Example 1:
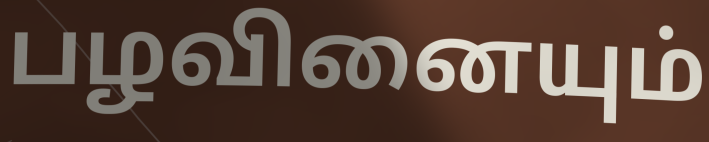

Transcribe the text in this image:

பழவினையும்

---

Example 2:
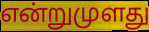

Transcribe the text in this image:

என்றுமுளது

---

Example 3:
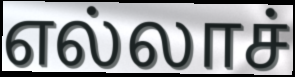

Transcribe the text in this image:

எல்லாச்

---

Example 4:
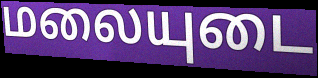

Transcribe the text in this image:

மலையுடை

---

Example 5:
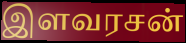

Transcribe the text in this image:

இளவரசன்